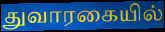
துவாரகையில்